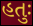
હતુઃ